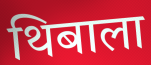
थिबाला